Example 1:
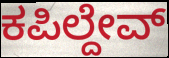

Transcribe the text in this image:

ಕಪಿಲ್ದೇವ್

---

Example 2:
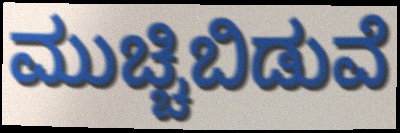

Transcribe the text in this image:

ಮುಚ್ಚಿಬಿಡುವೆ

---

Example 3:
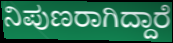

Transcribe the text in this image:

ನಿಪುಣರಾಗಿದ್ದಾರೆ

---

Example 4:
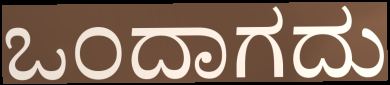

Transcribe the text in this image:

ಒಂದಾಗದು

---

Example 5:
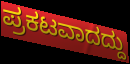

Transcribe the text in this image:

ಪ್ರಕಟವಾದದ್ದು